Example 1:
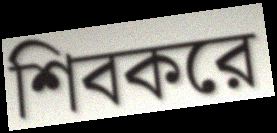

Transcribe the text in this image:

শিবকরে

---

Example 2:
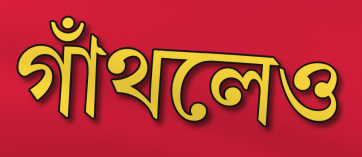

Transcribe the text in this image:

গাঁথলেও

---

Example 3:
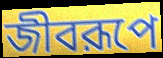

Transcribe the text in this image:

জীবরূপে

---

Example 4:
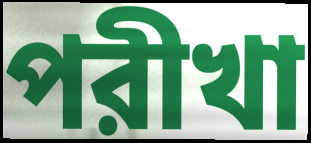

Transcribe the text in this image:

পরীখা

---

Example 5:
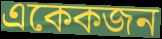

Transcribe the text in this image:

একেকজন